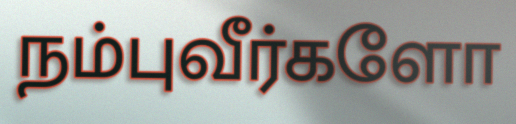
நம்புவீர்களோ